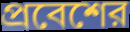
প্রবেশের